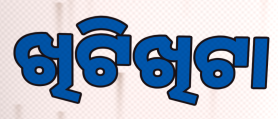
ଖିଟିଖିଟା